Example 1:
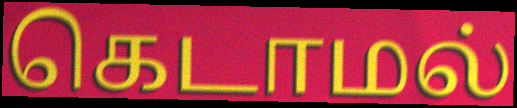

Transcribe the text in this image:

கெடாமல்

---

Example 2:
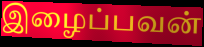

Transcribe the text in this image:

இழைப்பவன்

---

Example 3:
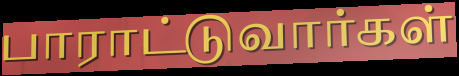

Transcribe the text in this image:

பாராட்டுவார்கள்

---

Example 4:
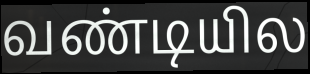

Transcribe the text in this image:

வண்டியில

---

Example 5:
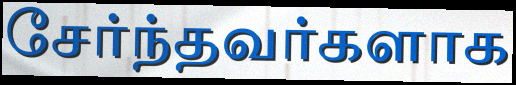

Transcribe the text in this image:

சேர்ந்தவர்களாக